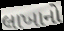
લાખાનો